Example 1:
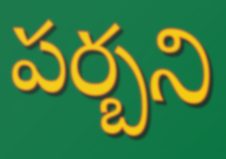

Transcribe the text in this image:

పర్బని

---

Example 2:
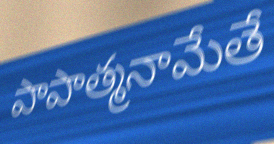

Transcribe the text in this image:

పాపాత్మనామేతే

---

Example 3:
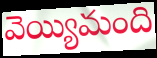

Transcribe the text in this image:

వెయ్యిమంది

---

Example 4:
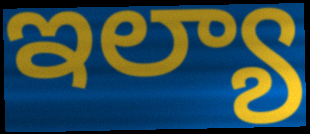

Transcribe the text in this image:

ఇల్యా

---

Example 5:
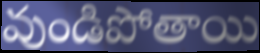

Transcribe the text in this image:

వుండిపోతాయి